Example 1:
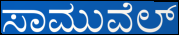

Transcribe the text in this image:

ಸಾಮುವೆಲ್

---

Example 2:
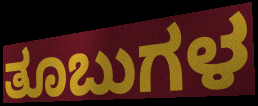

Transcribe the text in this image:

ತೂಬುಗಳ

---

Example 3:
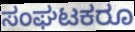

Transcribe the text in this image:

ಸಂಘಟಕರೂ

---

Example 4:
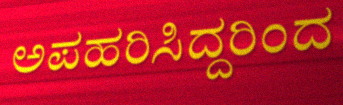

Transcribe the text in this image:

ಅಪಹರಿಸಿದ್ದರಿಂದ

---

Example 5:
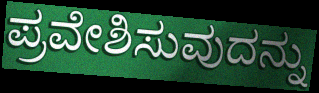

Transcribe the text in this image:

ಪ್ರವೇಶಿಸುವುದನ್ನು